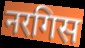
नरगिस